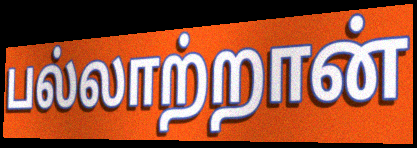
பல்லாற்றான்